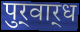
पुर्वार्ध